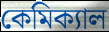
কেমিক্যাল